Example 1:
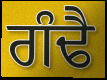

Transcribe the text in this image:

ਗੰਢੈ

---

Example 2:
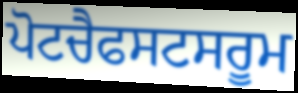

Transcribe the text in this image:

ਪੋਟਚੈਫਸਟਸਰੂਮ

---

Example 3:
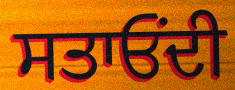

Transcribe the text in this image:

ਸਤਾਓਂਦੀ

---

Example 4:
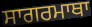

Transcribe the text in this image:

ਸਾਗਰਮਾਥਾ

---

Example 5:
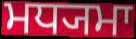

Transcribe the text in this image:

ਮਧ੍ਯਮਾ